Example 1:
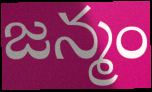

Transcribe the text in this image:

జన్మం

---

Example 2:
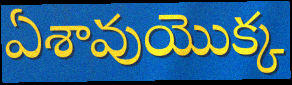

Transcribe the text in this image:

ఏశావుయొక్క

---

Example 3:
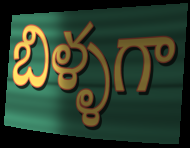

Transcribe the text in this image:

బిళ్ళగా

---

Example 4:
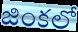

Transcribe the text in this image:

జింకలో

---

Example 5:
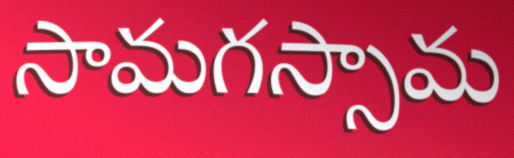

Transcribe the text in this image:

సామగస్సామ